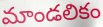
మాండలికం